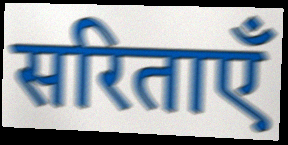
सरिताएँ